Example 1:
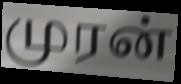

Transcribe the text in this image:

முரன்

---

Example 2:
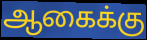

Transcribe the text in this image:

ஆகைக்கு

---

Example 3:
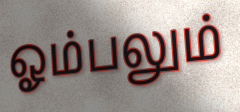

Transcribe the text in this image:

ஓம்பலும்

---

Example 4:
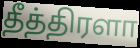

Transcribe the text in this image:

தீத்திரளா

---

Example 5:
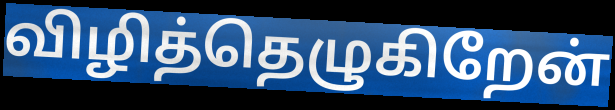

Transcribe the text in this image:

விழித்தெழுகிறேன்